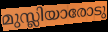
മുസ്ലിയാരോടു